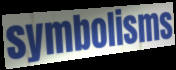
symbolisms